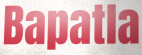
Bapatla